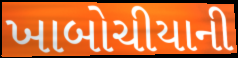
ખાબોચીયાની